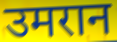
उमरान